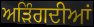
ਅੜਿੰਗਦੀਆਂ